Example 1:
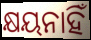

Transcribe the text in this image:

କ୍ଷୟନାହିଁ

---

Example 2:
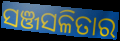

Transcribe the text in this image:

ସଞ୍ଜସଳିତାର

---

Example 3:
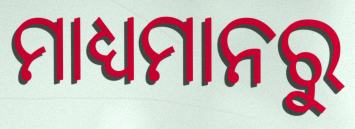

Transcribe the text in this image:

ମାଧ୍ୟମାନରୁ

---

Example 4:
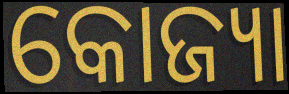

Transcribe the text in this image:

କୋଜ୍ୟା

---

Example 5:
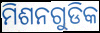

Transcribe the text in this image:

ମିଶନଗୁଡିକ